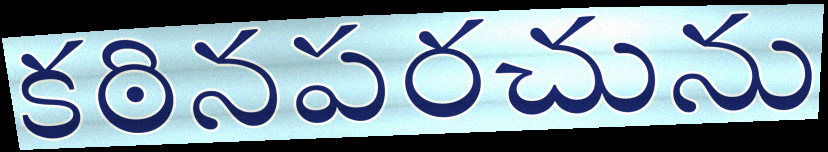
కఠినపరచును